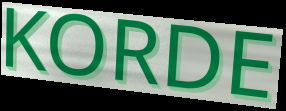
KORDE